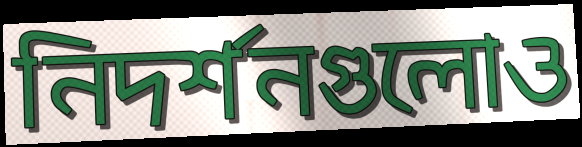
নিদর্শনগুলোও